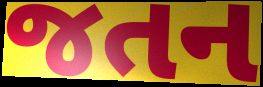
જતન